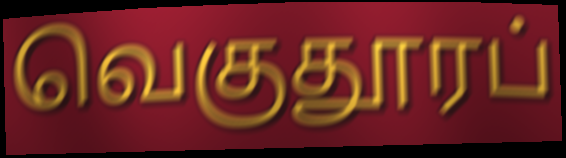
வெகுதூரப்